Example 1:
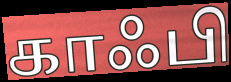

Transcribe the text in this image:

காஃபி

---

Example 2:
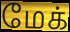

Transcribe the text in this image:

மேக்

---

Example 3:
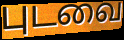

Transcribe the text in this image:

புடவை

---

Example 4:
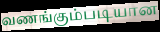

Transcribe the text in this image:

வணங்கும்படியான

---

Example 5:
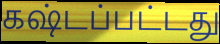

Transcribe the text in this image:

கஷ்டப்பட்டது